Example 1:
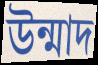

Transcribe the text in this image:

উন্মাদ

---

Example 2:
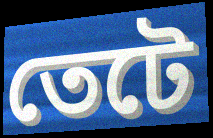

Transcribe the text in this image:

তেটে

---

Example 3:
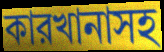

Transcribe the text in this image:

কারখানাসহ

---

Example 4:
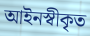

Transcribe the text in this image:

আইনস্বীকৃত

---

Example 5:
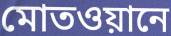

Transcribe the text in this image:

মোতওয়ানে